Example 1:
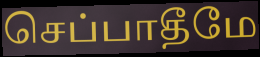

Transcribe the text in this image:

செப்பாதீமே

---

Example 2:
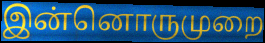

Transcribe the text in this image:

இன்னொருமுறை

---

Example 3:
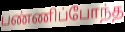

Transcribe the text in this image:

பண்ணிப்போந்த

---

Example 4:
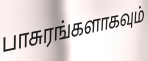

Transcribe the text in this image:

பாசுரங்களாகவும்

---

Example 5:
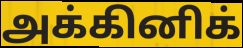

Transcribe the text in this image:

அக்கினிக்